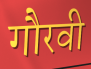
गौरवी